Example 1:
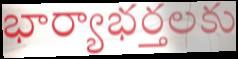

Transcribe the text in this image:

భార్యాభర్తలకు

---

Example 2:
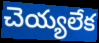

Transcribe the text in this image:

చెయ్యలేక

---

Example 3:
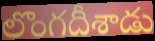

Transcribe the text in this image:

లొంగదీశాడు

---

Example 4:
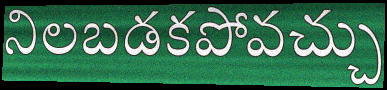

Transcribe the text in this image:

నిలబడకపోవచ్చు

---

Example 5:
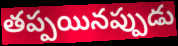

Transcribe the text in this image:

తప్పయినప్పుడు